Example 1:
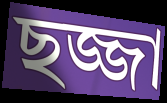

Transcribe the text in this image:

ছজ্জা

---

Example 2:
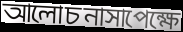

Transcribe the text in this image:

আলোচনাসাপেক্ষে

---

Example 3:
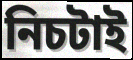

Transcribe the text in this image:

নিচটাই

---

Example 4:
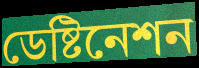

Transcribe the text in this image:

ডেষ্টিনেশন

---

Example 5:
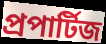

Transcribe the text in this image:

প্রপার্টিজ